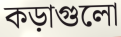
কড়াগুলো